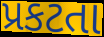
પ્રકટતા